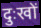
दुःखों